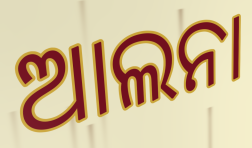
ଆଲନା